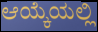
ಆಯ್ಕೆಯಲ್ಲಿ